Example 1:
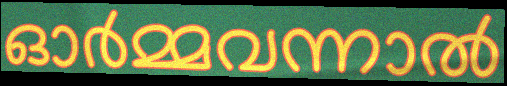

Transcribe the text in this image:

ഓർമ്മവന്നാൽ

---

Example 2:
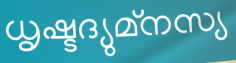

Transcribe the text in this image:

ധൃഷ്ടദ്യുമ്നസ്യ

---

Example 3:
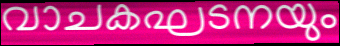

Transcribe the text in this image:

വാചകഘടനയും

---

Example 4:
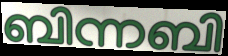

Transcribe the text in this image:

ബിന്നബി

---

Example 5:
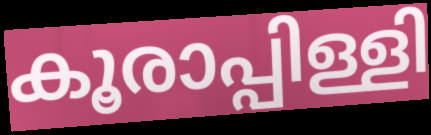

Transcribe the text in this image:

കൂരാപ്പിള്ളി